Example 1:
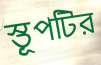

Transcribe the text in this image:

স্তূপটির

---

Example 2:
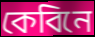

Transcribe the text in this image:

কেবিনে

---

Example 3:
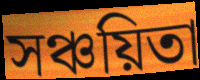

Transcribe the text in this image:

সঞ্চয়িতা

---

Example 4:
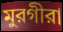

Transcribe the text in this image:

মুরগীরা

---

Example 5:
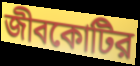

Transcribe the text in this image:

জীবকোটির